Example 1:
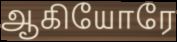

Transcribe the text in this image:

ஆகியோரே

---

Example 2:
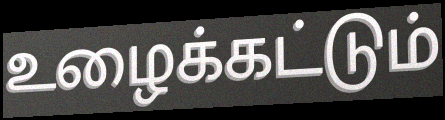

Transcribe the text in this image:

உழைக்கட்டும்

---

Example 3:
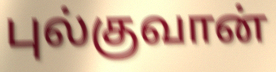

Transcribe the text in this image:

புல்குவான்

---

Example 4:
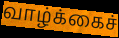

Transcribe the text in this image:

வாழ்க்கைச்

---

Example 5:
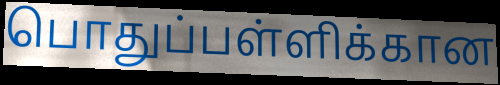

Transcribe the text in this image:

பொதுப்பள்ளிக்கான